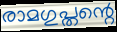
രാമഗുപ്തന്റെ